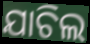
ଯାଚିଲ